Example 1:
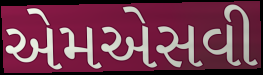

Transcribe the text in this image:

એમએસવી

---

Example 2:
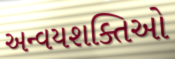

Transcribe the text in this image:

અન્વયશક્તિઓ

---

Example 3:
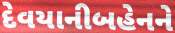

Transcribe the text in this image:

દેવયાનીબહેનને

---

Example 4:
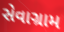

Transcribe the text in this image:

સેવાગ્રામ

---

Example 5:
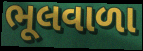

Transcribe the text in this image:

ભૂલવાળા